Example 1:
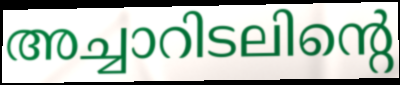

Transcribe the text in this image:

അച്ചാറിടലിന്റെ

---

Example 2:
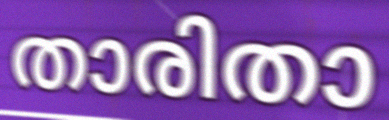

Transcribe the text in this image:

താരിതാ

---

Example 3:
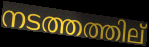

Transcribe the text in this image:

നടത്തത്തില്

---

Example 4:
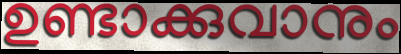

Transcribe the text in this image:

ഉണ്ടാക്കുവാനും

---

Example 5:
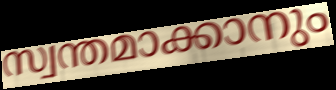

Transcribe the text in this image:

സ്വന്തമാക്കാനും